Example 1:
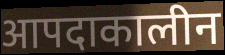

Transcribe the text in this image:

आपदाकालीन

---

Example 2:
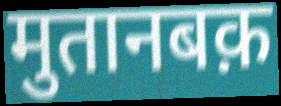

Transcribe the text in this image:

मुतानबक़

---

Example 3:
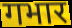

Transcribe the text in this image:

गभार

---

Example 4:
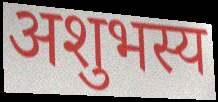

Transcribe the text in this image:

अशुभस्य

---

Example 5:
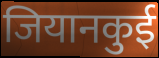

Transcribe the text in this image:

जियानकुई